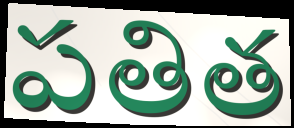
పతిత